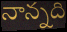
నాన్నది